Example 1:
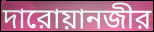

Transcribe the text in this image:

দারোয়ানজীর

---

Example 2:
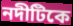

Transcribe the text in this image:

নদীটিকে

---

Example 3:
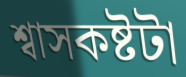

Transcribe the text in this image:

শ্বাসকষ্টটা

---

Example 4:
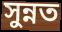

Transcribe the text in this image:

সুন্নত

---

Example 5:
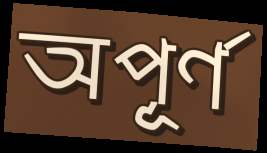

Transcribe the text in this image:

অপূর্ণ